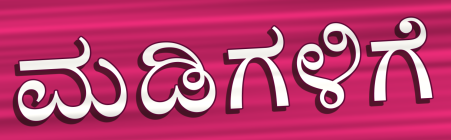
ಮಡಿಗಳಿಗೆ